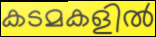
കടമകളിൽ